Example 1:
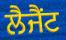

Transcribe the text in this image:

ਲੈਜੈਂਟ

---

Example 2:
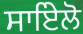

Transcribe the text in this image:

ਸਾਇੇਲੋ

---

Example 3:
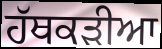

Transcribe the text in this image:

ਹੱਥਕੜੀਆ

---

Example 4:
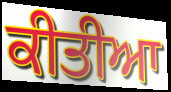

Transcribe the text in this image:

ਕੀਤੀਆ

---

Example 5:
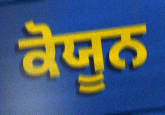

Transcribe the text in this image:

ਕੋਯੂਨ